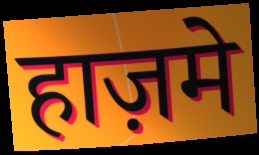
हाज़मे